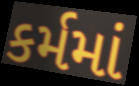
કર્મમાં